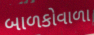
બાળકોવાળા